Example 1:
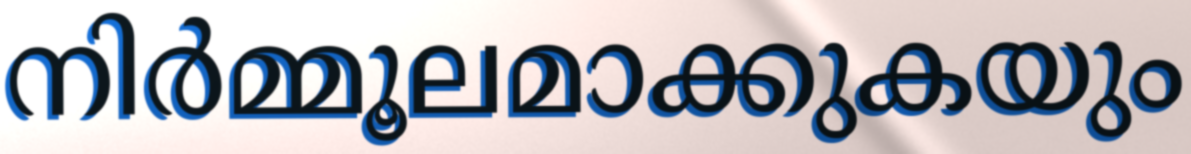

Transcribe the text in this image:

നിർമ്മൂലമാക്കുകയും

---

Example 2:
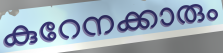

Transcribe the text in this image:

കുറേനക്കാരും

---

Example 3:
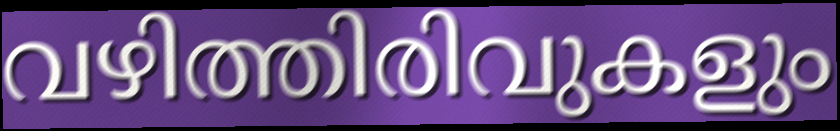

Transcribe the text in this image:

വഴിത്തിരിവുകളും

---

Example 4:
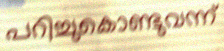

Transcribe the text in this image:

പറിച്ചുകൊണ്ടുവന്ന്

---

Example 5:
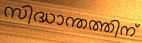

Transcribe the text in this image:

സിദ്ധാന്തത്തിന്